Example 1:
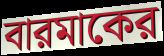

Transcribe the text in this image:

বারমাকের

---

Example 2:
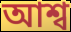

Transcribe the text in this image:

আশ্ব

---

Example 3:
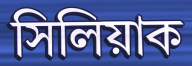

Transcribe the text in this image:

সিলিয়াক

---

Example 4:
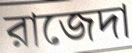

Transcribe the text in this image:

রাজেদা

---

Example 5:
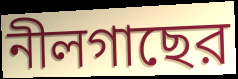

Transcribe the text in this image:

নীলগাছের